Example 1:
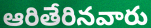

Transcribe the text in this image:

ఆరితేరినవారు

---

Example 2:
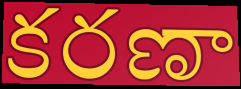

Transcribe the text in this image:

కరణా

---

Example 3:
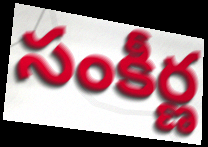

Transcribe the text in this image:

సంకీర్ణ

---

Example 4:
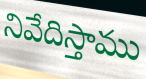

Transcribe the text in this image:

నివేదిస్తాము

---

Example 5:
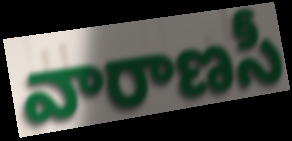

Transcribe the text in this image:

వారాణసీ